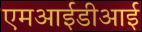
एमआईडीआई